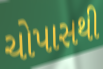
ચોપાસથી